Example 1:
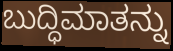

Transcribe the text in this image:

ಬುದ್ಧಿಮಾತನ್ನು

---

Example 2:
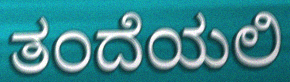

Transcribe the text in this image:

ತಂದೆಯಲಿ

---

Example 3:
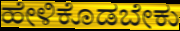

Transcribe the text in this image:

ಹೇಳಿಕೊಡಬೇಕು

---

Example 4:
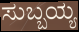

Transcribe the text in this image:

ಸುಬ್ಬಯ್ಯ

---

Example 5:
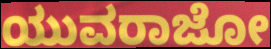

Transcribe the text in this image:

ಯುವರಾಜೋ